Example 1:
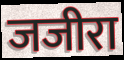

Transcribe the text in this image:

जजीरा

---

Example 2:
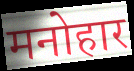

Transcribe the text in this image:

मनोहार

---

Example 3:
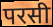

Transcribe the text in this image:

परसी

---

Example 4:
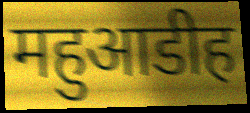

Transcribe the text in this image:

महुआडीह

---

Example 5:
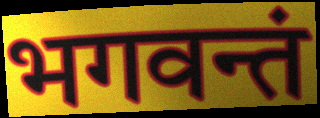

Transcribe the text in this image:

भगवन्तं